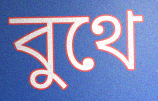
বুথে